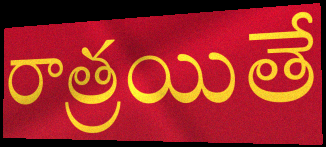
రాత్రయితే